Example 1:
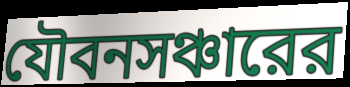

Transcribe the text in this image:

যৌবনসঞ্চারের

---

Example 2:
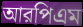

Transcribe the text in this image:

আরপিএম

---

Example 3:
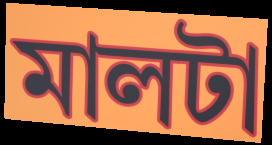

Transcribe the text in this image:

মালটা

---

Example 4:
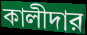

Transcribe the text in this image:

কালীদার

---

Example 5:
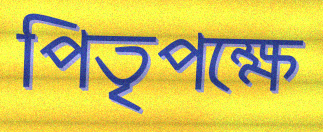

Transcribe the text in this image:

পিতৃপক্ষে